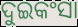
ଦୁଇକଂସା